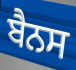
ਬੈਨਸ